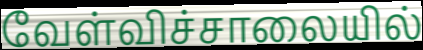
வேள்விச்சாலையில்